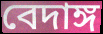
বেদাঙ্গ